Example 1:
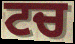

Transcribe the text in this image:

ਟਚ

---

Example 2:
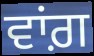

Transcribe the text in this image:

ਵਾਂਗ਼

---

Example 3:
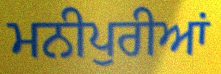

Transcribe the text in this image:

ਮਨੀਪੁਰੀਆਂ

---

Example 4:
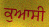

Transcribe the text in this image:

ਕੁਆਸੀ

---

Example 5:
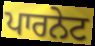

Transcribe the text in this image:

ਪਾਰਨੇਟ